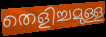
തെളിച്ചമുള്ള